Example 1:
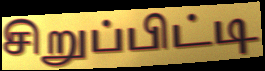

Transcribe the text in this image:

சிறுப்பிட்டி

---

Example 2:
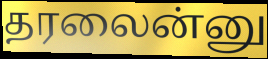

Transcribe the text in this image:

தரலைன்னு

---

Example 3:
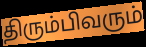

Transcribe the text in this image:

திரும்பிவரும்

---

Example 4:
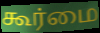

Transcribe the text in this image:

கூர்மை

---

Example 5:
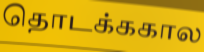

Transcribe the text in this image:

தொடக்ககால